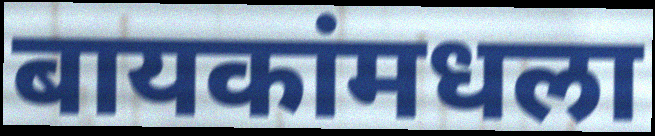
बायकांमधला